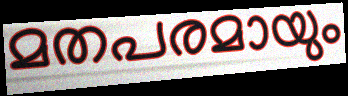
മതപരമായും